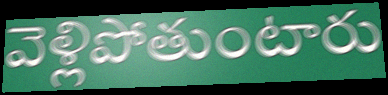
వెళ్లిపోతుంటారు